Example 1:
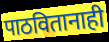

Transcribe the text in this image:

पाठवितानाही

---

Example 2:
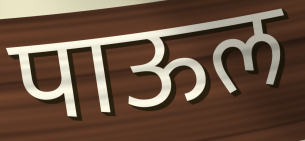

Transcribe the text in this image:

पाऊल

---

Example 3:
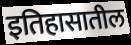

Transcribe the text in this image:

इतिहासातील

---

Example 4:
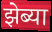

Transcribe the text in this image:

झेब्या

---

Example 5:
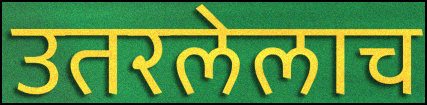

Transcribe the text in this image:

उतरलेलाच